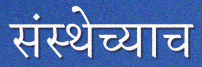
संस्थेच्याच